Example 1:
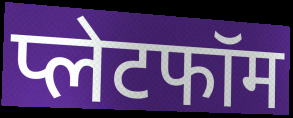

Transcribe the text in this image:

प्लेटफॉम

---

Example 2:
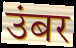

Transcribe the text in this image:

उंबर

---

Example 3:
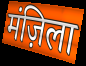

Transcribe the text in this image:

मंज़िला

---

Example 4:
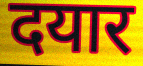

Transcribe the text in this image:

दयार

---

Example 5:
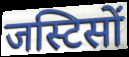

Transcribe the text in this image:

जस्टिसों